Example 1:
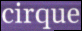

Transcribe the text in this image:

cirque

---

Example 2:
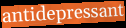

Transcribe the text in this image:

antidepressant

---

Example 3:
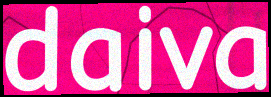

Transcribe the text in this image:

daiva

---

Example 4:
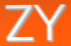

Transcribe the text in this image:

ZY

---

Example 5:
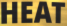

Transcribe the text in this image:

HEAT